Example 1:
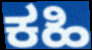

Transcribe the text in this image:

ಕಹಿ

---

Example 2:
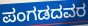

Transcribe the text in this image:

ಪಂಗಡದವರ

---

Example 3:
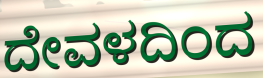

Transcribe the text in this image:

ದೇವಳದಿಂದ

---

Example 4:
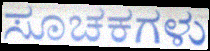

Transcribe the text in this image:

ಸೂಚಕಗಳು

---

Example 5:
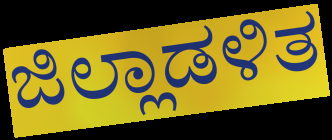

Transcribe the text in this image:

ಜಿಲ್ಲಾಡಳಿತ